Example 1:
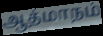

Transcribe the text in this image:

ஆத்மாநம்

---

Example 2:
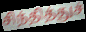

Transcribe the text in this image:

சிந்தித்துச்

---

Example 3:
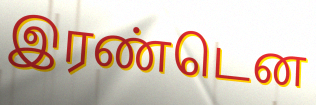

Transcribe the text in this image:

இரண்டென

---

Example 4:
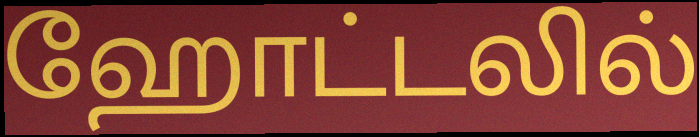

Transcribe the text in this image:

ஹோட்டலில்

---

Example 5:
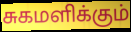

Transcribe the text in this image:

சுகமளிக்கும்